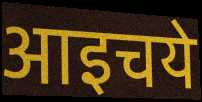
आइचये